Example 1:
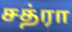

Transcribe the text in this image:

சத்ரா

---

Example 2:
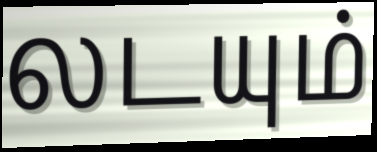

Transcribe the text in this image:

லடயும்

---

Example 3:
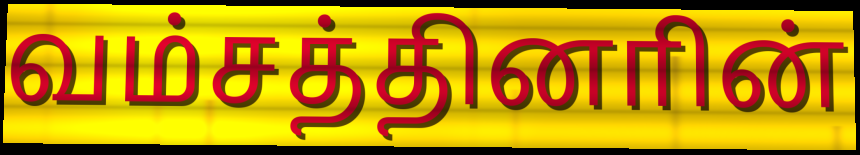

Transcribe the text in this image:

வம்சத்தினரின்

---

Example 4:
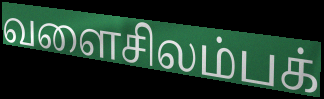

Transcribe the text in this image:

வளைசிலம்பக்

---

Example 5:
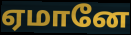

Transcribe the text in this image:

ஏமானே